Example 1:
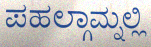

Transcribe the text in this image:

ಪಹಲ್ಗಾಮ್ನಲ್ಲಿ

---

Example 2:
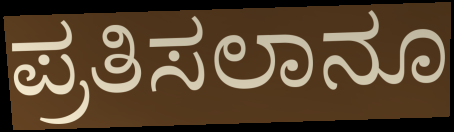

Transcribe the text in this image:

ಪ್ರತಿಸಲಾನೂ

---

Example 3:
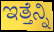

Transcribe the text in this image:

ಇತ್ತೆನ್ನಿ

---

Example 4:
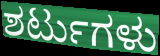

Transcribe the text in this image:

ಶರ್ಟುಗಳು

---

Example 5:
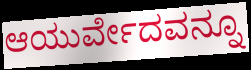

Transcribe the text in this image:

ಆಯುರ್ವೇದವನ್ನೂ